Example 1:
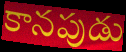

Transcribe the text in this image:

కానపుడు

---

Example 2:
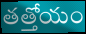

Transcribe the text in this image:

తత్తోయం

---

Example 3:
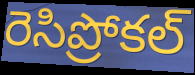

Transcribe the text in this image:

రెసిప్రోకల్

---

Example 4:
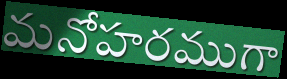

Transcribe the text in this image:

మనోహరముగా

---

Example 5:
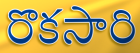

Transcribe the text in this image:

రొకసారి